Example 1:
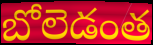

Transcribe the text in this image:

బోలెడంత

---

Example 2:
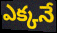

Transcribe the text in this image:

ఎక్కనే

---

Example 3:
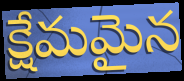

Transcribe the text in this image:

క్షేమమైన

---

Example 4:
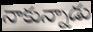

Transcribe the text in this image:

నాకున్నాడు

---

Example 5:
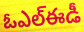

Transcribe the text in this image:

ఓఎల్ఈడీ